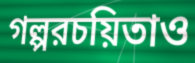
গল্পরচয়িতাও